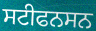
ਸਟੀਫਨਸਨ